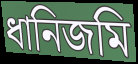
ধানিজমি